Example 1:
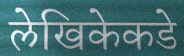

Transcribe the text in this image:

लेखिकेकडे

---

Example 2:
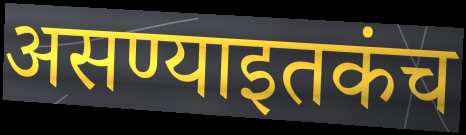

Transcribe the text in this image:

असण्याइतकंच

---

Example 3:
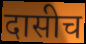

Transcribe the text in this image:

दासीच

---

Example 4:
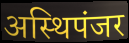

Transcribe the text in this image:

अस्थिपंजर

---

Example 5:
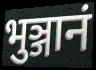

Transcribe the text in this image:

भुञ्जानं